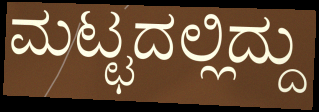
ಮಟ್ಟದಲ್ಲಿದ್ದು